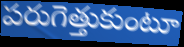
పరుగెత్తుకుంటూ